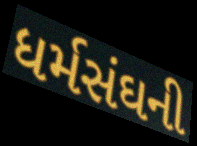
ધર્મસંઘની